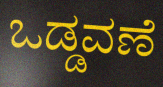
ಒಡ್ಡವಣೆ